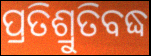
ପ୍ରତିଶ୍ରୁତିବଦ୍ଧ